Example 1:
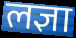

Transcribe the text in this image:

लज्ञा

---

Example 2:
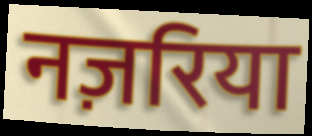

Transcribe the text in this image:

नज़रिया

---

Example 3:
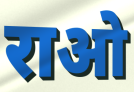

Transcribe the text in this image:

राओ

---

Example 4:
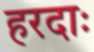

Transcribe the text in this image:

हरदाः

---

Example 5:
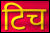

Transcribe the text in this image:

टिच